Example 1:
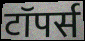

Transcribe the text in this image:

टॉपर्स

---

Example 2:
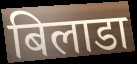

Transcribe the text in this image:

बिलाडा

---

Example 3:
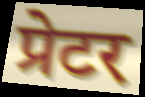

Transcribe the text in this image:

प्रेटर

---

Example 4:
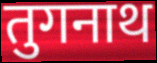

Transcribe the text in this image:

तुगनाथ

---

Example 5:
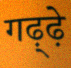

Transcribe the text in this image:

गढ़्ढ़े